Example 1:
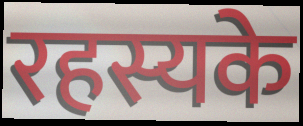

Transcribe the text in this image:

रहस्यके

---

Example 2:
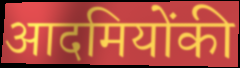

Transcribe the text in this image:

आदमियोंकी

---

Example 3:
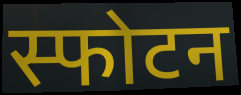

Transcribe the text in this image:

स्फोटन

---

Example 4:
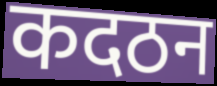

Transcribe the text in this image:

कदठन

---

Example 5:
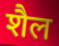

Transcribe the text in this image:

शैल